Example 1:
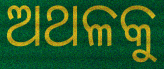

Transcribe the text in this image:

ଅଥଳକୁ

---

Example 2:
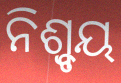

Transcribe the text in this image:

ନିଶ୍ୱ୍ଚୟ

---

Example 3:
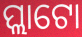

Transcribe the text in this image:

ପ୍ଲାଟୋ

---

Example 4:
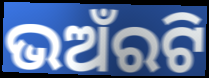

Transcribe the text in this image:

ଭଅଁରଟି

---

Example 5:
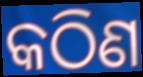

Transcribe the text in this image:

କଠିଣ